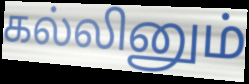
கல்லினும்